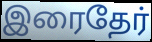
இரைதேர்